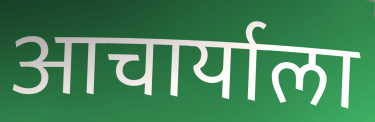
आचार्याला